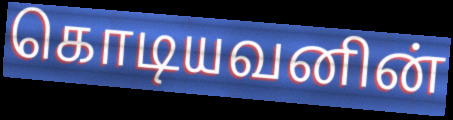
கொடியவனின்